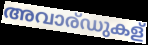
അവാര്ഡുകള്